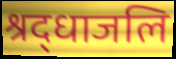
श्रद्धाजलि